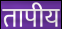
तापीय